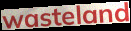
wasteland